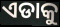
ଏଡାକୁ